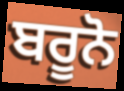
ਬਰੂਨੋ